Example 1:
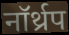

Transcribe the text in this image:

नॉर्थ्रप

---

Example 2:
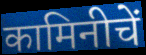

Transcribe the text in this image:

कामिनीचें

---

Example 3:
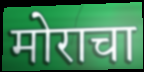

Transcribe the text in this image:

मोराचा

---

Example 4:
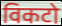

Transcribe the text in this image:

विकटो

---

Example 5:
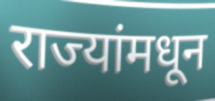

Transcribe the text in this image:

राज्यांमधून